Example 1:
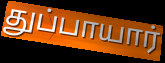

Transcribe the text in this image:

துப்பாயார்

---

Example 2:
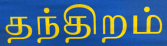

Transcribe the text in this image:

தந்திறம்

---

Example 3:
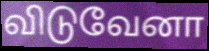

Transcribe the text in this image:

விடுவேனா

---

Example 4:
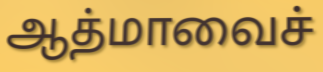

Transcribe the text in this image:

ஆத்மாவைச்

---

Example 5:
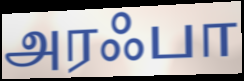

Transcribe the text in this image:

அரஃபா